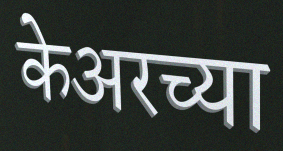
केअरच्या